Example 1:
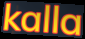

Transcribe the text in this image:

kalla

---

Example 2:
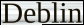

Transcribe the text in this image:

Deblin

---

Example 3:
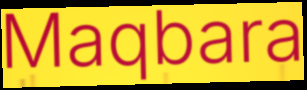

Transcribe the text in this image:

Maqbara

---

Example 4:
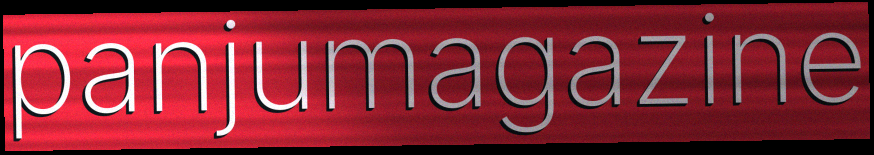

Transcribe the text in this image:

panjumagazine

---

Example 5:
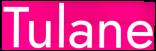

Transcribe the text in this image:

Tulane